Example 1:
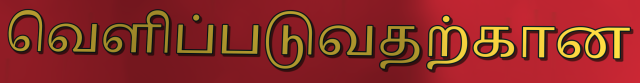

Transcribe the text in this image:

வெளிப்படுவதற்கான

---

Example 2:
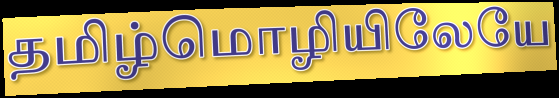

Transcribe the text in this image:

தமிழ்மொழியிலேயே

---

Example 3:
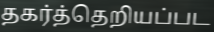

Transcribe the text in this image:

தகர்த்தெறியப்பட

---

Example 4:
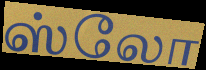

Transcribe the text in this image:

ஸ்லோ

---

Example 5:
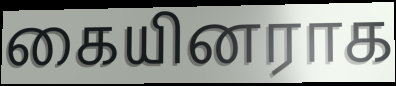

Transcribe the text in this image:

கையினராக